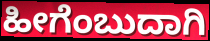
ಹೀಗೆಂಬುದಾಗಿ